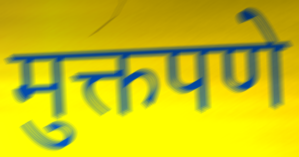
मुक्तपणे